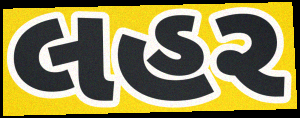
લહર